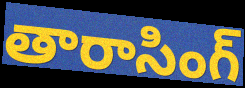
తారాసింగ్